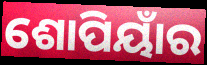
ଶୋପିୟାଁର